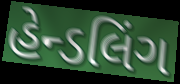
હેન્ડલિંગ